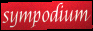
sympodium